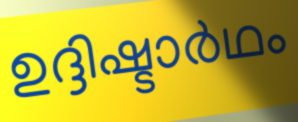
ഉദ്ദിഷ്ടാർഥം